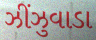
ઝીંઝુવાડા